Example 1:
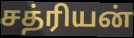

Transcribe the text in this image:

சத்ரியன்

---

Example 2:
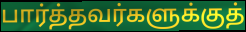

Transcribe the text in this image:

பார்த்தவர்களுக்குத்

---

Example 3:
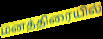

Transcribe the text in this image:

மனத்திரையில்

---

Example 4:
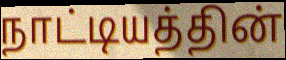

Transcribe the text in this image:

நாட்டியத்தின்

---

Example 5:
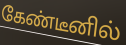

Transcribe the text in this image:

கேண்டீனில்